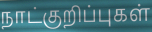
நாட்குறிப்புகள்